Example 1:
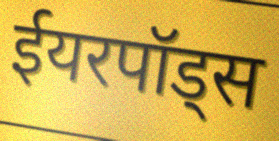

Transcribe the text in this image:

ईयरपॉड्स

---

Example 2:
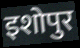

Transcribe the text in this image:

इशोपुर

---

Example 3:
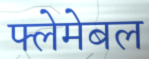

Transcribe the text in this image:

फ्लेमेबल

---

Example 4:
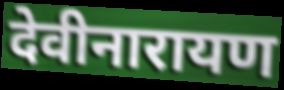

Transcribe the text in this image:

देवीनारायण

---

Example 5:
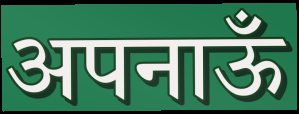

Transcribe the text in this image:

अपनाऊँ